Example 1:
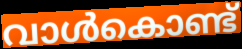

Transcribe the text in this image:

വാൾകൊണ്ട്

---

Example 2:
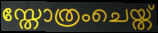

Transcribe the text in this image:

സ്തോത്രംചെയ്ത്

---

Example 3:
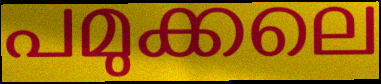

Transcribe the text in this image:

പമുക്കലെ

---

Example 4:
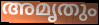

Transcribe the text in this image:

അമൃതും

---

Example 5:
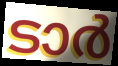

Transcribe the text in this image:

ടാർ